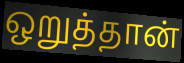
ஒறுத்தான்